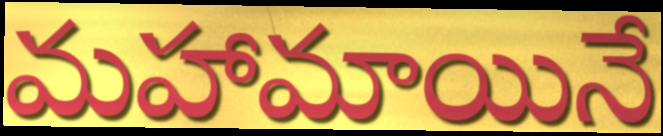
మహామాయినే